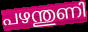
പഴന്തുണി